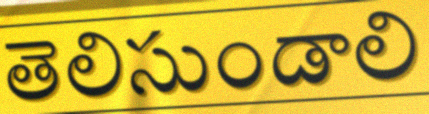
తెలిసుండాలి